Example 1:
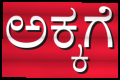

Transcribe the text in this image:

ಅಕ್ಕಗೆ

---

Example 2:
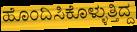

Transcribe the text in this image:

ಹೊಂದಿಸಿಕೊಳ್ಳುತ್ತಿದ್ದ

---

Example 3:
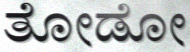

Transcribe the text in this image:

ತೋಡೋ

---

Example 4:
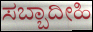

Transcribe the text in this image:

ಸಬ್ಬಾದೀಹಿ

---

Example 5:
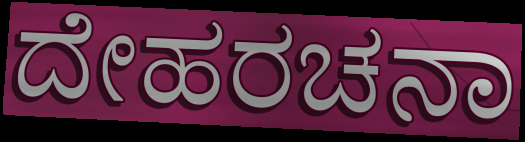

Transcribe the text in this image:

ದೇಹರಚನಾ